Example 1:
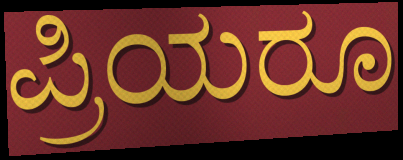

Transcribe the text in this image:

ಪ್ರಿಯರೂ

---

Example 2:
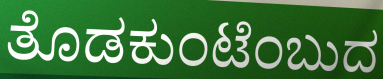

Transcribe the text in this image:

ತೊಡಕುಂಟೆಂಬುದ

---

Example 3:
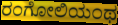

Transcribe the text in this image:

ರಂಗೋಲಿಯಂಥ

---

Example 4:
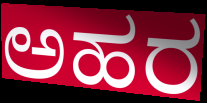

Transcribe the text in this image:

ಅಹರ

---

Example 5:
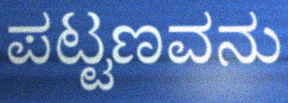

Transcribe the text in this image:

ಪಟ್ಟಣವನು